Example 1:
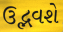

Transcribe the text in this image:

ઉદ્ભવશે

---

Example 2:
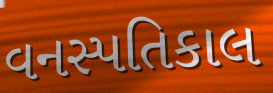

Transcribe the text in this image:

વનસ્પતિકાલ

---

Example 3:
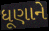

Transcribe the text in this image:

ધૂણાને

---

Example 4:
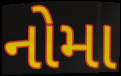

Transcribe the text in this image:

નોમા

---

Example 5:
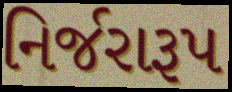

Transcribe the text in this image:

નિર્જરારૂપ